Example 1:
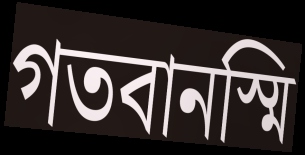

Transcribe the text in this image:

গতবানস্মি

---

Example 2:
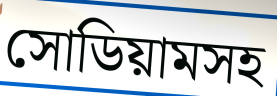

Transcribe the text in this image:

সোডিয়ামসহ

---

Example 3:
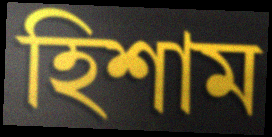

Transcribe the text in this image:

হিশাম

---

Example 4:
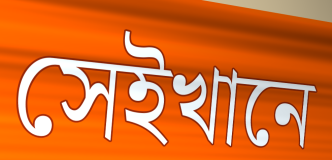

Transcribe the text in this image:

সেইখানে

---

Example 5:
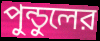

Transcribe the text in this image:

পুন্ডুলের